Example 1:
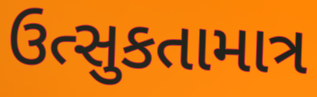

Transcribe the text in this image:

ઉત્સુકતામાત્ર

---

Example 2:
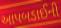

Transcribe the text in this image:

આપબડાઈની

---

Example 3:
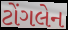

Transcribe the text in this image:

ટોંગલેન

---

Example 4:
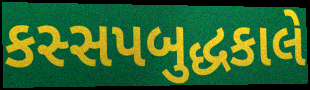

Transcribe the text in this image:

કસ્સપબુદ્ધકાલે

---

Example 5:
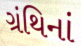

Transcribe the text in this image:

ગ્રંથિનાં